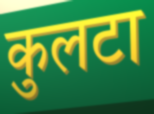
कुलटा